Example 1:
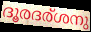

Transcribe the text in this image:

ദൂരദര്ശനു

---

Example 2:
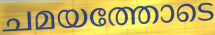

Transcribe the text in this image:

ചമയത്തോടെ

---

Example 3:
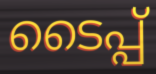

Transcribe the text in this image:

ടൈപ്പ്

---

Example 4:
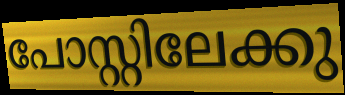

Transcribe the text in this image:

പോസ്റ്റിലേക്കു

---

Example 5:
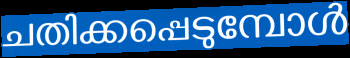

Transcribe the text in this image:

ചതിക്കപ്പെടുമ്പോൾ